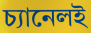
চ্যানেলই